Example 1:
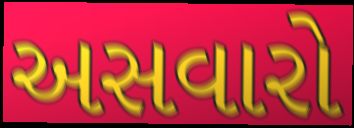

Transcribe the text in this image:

અસવારો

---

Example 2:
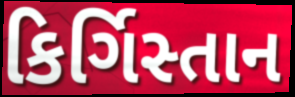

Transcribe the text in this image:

કિર્ગિસ્તાન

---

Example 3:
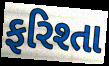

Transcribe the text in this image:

ફરિશ્તા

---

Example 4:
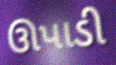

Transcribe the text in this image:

ઊપાડી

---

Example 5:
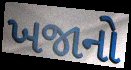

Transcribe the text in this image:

ખજાનો